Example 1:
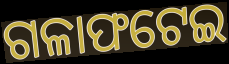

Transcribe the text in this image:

ଗଳାଫଟେଇ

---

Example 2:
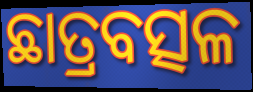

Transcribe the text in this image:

ଛାତ୍ରବତ୍ସଳ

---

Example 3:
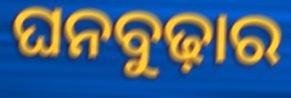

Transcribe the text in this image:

ଘନବୁଢ଼ାର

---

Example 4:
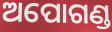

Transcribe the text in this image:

ଅପୋଗଣ୍ଡ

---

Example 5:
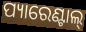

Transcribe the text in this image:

ପ୍ୟାରେଣ୍ଟାଲ୍